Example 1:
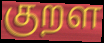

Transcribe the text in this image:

குறள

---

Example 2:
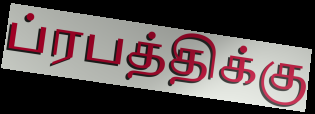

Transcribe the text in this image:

ப்ரபத்திக்கு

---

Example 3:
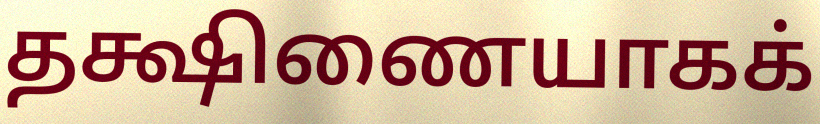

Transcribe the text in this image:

தக்ஷிணையாகக்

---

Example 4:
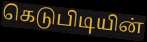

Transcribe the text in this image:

கெடுபிடியின்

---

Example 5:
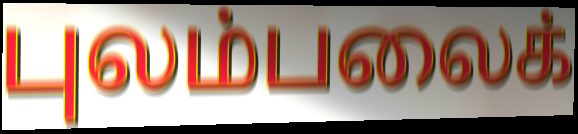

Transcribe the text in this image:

புலம்பலைக்